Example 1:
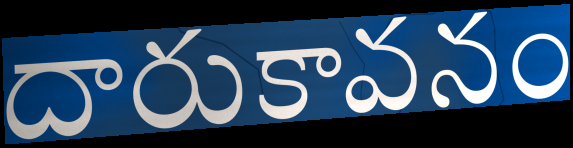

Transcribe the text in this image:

దారుకావనం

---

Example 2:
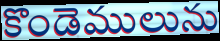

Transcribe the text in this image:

కొండెములును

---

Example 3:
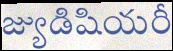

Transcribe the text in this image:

జ్యుడిషియరీ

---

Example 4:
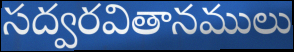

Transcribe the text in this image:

సద్వరవితానములు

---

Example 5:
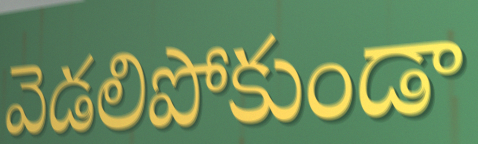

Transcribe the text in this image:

వెడలిపోకుండా